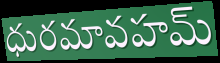
ధురమావహమ్